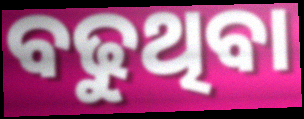
ବଢୁଥିବା